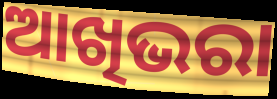
ଆଖିଭରା